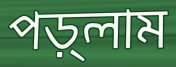
পড়্‌লাম